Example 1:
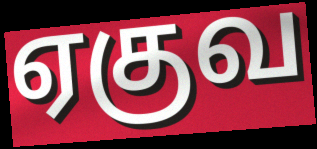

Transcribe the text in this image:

ஏகுவ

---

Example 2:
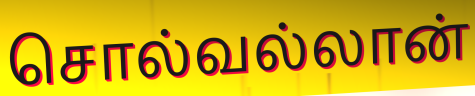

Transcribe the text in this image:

சொல்வல்லான்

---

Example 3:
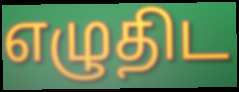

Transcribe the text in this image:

எழுதிட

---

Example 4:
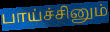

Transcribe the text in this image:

பாய்ச்சினும்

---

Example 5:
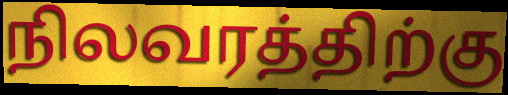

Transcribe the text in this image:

நிலவரத்திற்கு